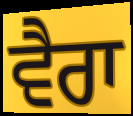
ਵੈਰਾ